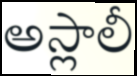
అస్లాలీ